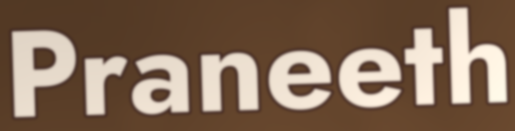
Praneeth